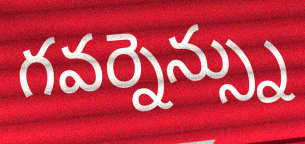
గవర్నెన్స్ను